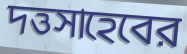
দত্তসাহেবের